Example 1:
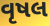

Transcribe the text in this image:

વૃષલ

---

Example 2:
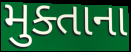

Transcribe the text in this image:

મુક્તાના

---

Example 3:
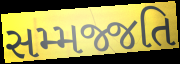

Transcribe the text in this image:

સમ્મજ્જતિ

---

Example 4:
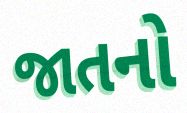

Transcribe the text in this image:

જાતનો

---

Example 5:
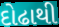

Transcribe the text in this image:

દોઢાથી